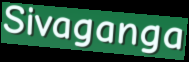
Sivaganga